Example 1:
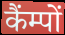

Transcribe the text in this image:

कैंम्पों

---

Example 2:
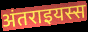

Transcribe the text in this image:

अंतराइयस्स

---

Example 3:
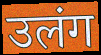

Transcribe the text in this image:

उलंग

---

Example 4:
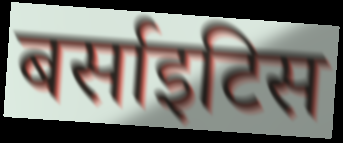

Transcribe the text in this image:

बर्साइटिस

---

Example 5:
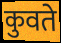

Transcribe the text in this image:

कुवते